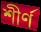
শীর্ণ